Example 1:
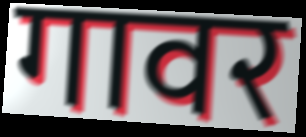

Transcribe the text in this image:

गावर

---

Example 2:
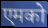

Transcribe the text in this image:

एमको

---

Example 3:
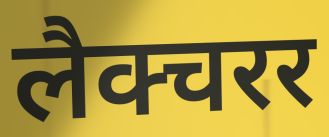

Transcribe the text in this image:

लैक्चरर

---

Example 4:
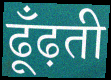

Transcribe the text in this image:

ढूँढ़ती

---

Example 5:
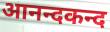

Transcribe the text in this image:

आनन्दकन्द